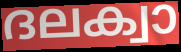
ദലക്വാ